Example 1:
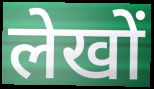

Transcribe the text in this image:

लेखों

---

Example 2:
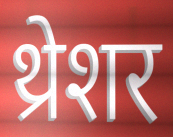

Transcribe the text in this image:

थ्रेशर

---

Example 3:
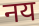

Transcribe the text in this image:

नय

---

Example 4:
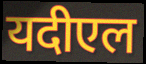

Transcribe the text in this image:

यदीएल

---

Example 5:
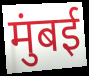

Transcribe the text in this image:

मुंबई